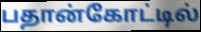
பதான்கோட்டில்